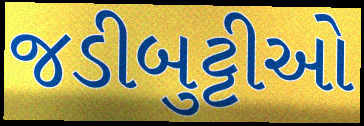
જડીબુટ્ટીઓ